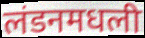
लंडनमधली